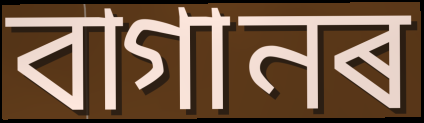
বাগানৰ